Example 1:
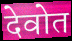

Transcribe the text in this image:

देवोत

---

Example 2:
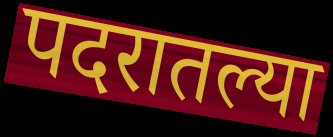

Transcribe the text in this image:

पदरातल्या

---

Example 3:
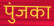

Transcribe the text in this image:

पुंजका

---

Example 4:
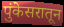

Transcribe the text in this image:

पुंकेसरातून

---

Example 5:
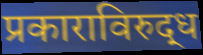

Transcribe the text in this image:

प्रकाराविरुद्ध